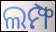
ଲମ୍ଫ